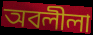
অবলীলা